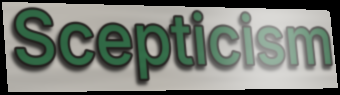
Scepticism